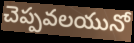
చెప్పవలయునో